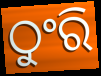
ଠୁଂରି